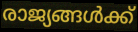
രാജ്യങ്ങൾക്ക്